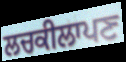
ਲਚਕੀਲਾਪਣ